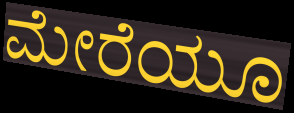
ಮೇರೆಯೂ